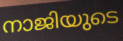
നാജിയുടെ